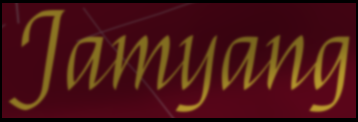
Jamyang